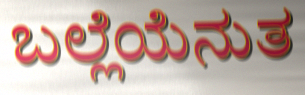
ಬಲ್ಲೆಯೆನುತ